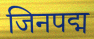
जिनपद्म